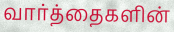
வார்த்தைகளின்